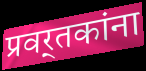
प्रवर्तकांना